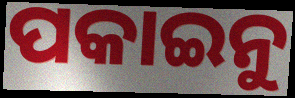
ପକାଇନୁ